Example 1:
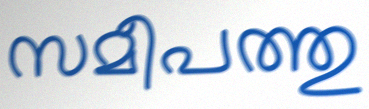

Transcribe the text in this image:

സമീപത്തു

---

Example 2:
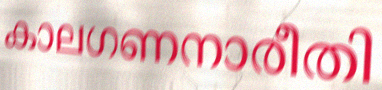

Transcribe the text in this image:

കാലഗണനാരീതി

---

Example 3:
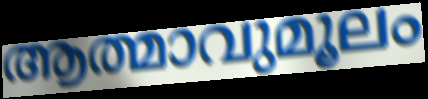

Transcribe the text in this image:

ആത്മാവുമൂലം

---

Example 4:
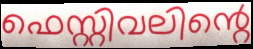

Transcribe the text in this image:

ഫെസ്റ്റിവലിന്റെ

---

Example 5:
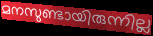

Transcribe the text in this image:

മനസുണ്ടായിരുന്നില്ല